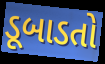
ડૂબાડતો